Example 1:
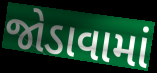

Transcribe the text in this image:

જોડાવામાં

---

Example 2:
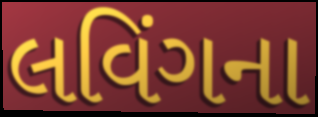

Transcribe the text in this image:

લવિંગના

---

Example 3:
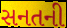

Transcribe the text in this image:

સનતની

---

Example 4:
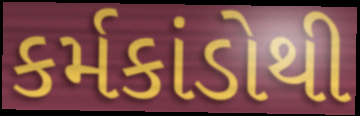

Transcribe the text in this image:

કર્મકાંડોથી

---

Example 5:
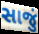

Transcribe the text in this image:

સાજું